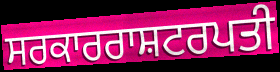
ਸਰਕਾਰਰਾਸ਼ਟਰਪਤੀ